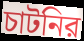
চাটনির